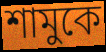
শামুকে